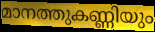
മാനത്തുകണ്ണിയും